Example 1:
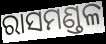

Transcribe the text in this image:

ରାସମଣ୍ଡଳ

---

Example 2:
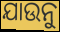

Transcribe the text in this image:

ଯାଉନୁ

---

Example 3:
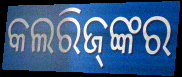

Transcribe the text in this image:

କଲରିଜ୍‌ଙ୍କର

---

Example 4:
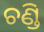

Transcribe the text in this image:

ଚଣ୍ଡି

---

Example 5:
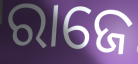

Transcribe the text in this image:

ରାଜେ